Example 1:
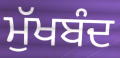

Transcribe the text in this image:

ਮੁੱਖਬੰਦ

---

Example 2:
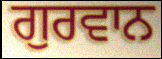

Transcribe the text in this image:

ਗੁਰਵਾਨ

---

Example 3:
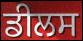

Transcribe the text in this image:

ਡੀਲਸ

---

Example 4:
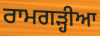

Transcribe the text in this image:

ਰਾਮਗਡ਼੍ਹੀਆ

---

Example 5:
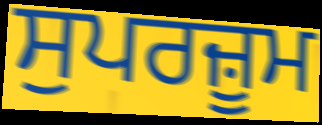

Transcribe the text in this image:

ਸੁਪਰਜ਼ੂਮ